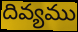
దివ్యము